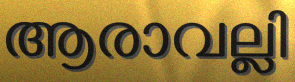
ആരാവല്ലി